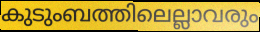
കുടുംബത്തിലെല്ലാവരും